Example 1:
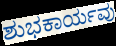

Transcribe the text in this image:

ಶುಭಕಾರ್ಯವು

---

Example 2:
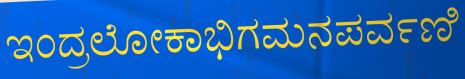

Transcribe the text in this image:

ಇಂದ್ರಲೋಕಾಭಿಗಮನಪರ್ವಣಿ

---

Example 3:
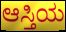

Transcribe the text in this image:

ಆಸ್ತಿಯ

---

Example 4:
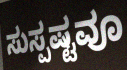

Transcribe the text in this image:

ಸುಸ್ಪಷ್ಟವೂ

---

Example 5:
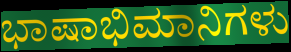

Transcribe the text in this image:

ಭಾಷಾಭಿಮಾನಿಗಳು